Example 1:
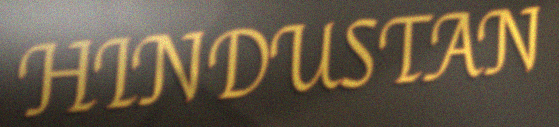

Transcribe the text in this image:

HINDUSTAN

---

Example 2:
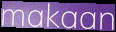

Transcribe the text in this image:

makaan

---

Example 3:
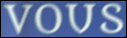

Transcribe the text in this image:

vous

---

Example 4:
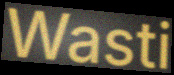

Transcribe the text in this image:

Wasti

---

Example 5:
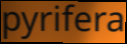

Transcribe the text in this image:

pyrifera